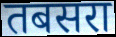
तबसरा